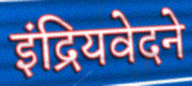
इंद्रियवेदने